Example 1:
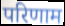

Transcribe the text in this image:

परिणाम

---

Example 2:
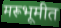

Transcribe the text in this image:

मरूभूमीत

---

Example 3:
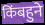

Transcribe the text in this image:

किंबहुने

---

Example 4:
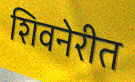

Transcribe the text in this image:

शिवनेरीत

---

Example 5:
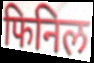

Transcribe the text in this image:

फिनिल